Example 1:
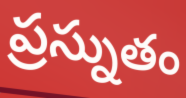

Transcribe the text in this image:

ప్రస్నుతం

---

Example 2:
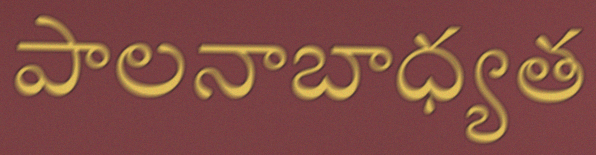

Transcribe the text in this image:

పాలనాబాధ్యత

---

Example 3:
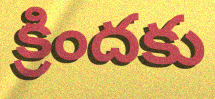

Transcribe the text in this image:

క్రిందకు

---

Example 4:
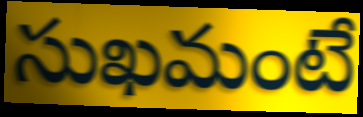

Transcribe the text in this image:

సుఖమంటే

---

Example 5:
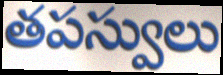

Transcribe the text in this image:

తపస్వులు